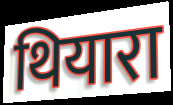
थियारा